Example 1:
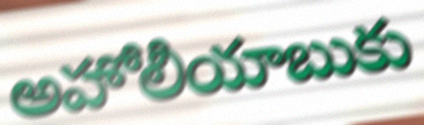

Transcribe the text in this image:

అహోలీయాబుకు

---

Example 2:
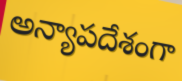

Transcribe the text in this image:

అన్యాపదేశంగా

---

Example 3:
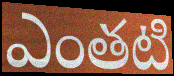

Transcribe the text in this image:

ఎంతటి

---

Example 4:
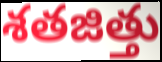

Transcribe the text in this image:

శతజిత్తు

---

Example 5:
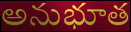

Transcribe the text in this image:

అనుభూత